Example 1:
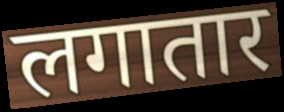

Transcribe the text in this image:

लगातार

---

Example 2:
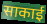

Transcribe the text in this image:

साकाई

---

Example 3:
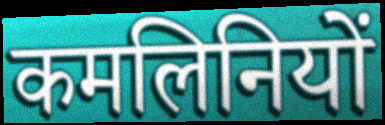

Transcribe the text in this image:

कमलिनियों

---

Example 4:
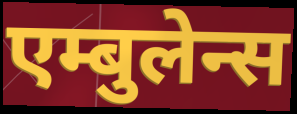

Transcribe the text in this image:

एम्बुलेन्स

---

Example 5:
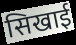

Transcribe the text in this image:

सिखाई